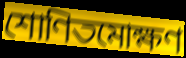
শোণিতমোক্ষণ